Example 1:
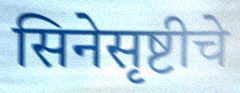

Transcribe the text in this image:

सिनेसृष्टीचे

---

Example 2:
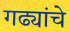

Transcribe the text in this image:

गढ्यांचे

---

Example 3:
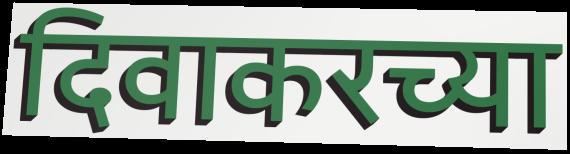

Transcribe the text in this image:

दिवाकरच्या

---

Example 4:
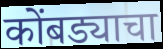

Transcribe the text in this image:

कोंबड्याचा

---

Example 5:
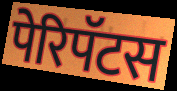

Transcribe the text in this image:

पेरिपॅटस